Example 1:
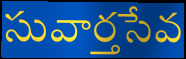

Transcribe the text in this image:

సువార్తసేవ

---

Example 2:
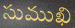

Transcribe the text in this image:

సుముఖి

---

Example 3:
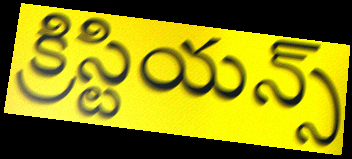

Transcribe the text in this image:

క్రిస్టియన్స్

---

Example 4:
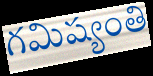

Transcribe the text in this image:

గమిష్యంతి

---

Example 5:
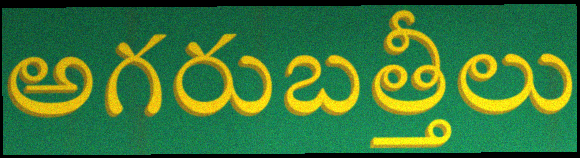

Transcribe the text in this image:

అగరుబత్తీలు